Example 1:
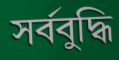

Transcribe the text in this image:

সৰ্ববুদ্ধি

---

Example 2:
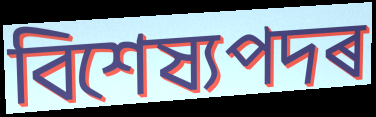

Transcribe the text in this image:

বিশেষ্যপদৰ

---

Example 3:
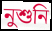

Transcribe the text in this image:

নুশুনি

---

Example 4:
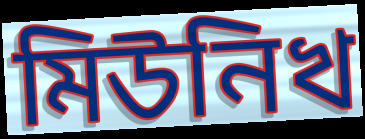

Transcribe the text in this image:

মিউনিখ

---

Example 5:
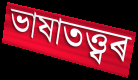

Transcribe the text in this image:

ভাষাতত্ত্বৰ